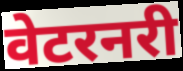
वेटरनरी